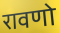
रावणो